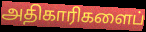
அதிகாரிகளைப்